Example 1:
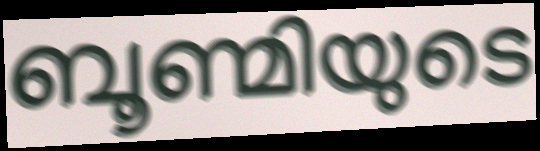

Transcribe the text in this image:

ബൂണ്മിയുടെ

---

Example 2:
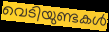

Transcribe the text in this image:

വെടിയുണ്ടകൾ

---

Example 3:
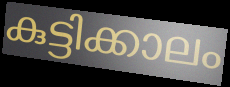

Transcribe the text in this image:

കുട്ടിക്കാലം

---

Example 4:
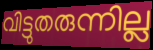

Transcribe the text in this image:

വിട്ടുതരുന്നില്ല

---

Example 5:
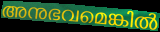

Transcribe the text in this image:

അനുഭവമെങ്കിൽ